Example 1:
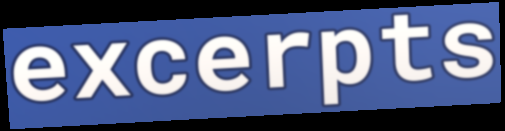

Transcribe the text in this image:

excerpts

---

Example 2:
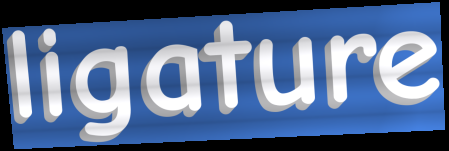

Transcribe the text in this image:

ligature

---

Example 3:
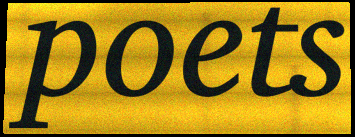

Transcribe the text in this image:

poets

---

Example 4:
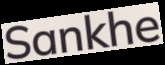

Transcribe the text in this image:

Sankhe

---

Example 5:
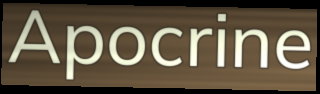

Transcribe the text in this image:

Apocrine